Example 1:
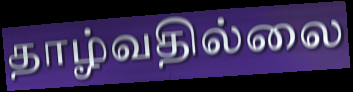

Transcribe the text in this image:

தாழ்வதில்லை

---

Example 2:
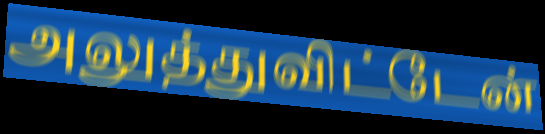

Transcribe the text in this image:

அலுத்துவிட்டேன்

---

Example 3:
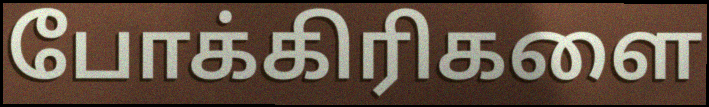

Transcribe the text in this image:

போக்கிரிகளை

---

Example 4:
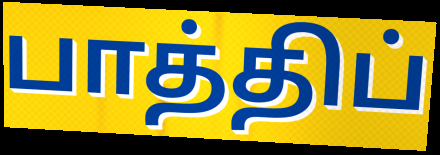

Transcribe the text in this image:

பாத்திப்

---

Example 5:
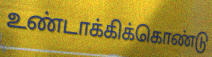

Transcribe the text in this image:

உண்டாக்கிக்கொண்டு